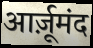
आर्ज़ूमंद